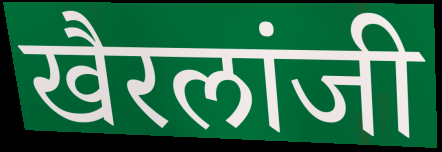
खैरलांजी